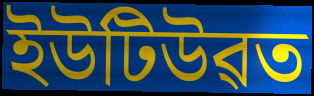
ইউটিউৱত